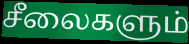
சீலைகளும்